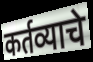
कर्तव्याचे